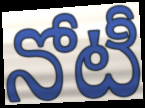
నోటీ